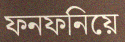
ফনফনিয়ে